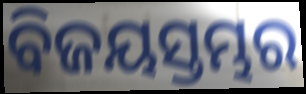
ବିଜୟସ୍ତମ୍ଭର